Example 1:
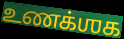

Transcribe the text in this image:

உணக்ஶக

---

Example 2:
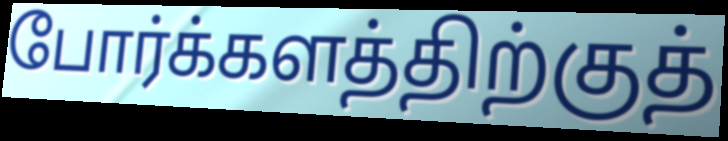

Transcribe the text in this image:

போர்க்களத்திற்குத்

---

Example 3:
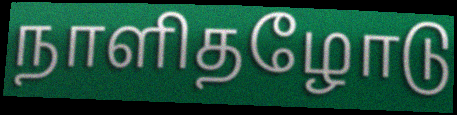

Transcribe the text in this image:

நாளிதழோடு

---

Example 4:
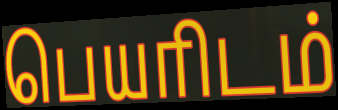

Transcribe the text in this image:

பெயரிடம்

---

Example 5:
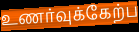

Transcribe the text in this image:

உணர்வுக்கேற்ப